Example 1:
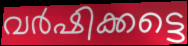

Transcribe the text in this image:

വർഷിക്കട്ടെ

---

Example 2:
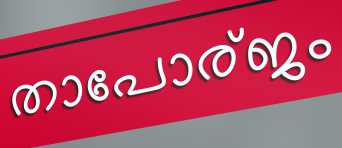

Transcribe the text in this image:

താപോര്ജം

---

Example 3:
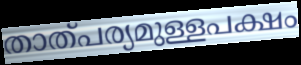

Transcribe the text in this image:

താത്പര്യമുള്ളപക്ഷം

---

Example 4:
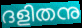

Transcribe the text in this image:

ദളിതനു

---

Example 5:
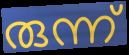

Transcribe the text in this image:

രുന്ന്